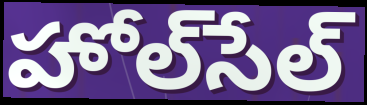
హోల్‌సేల్